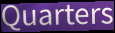
Quarters